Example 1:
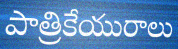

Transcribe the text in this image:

పాత్రికేయురాలు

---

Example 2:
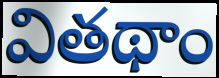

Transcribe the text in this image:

వితథాం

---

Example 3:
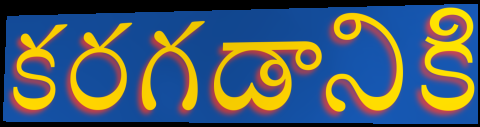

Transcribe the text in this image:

కరగడానికి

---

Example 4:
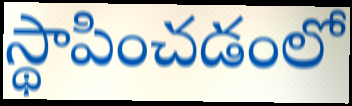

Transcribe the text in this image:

స్థాపించడంలో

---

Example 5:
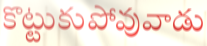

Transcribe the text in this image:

కొట్టుకుపోవువాడు